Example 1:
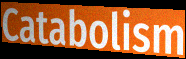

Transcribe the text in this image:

Catabolism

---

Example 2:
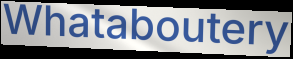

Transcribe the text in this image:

Whataboutery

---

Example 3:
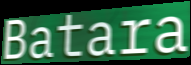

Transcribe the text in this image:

Batara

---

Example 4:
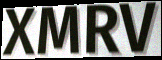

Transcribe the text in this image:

XMRV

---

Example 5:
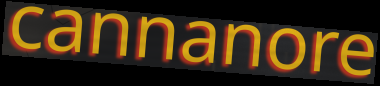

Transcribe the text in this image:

cannanore